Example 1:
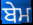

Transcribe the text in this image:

ਬੇਮ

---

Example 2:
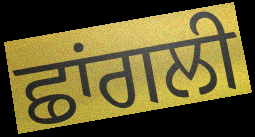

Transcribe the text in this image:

ਛਾਂਗਲੀ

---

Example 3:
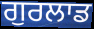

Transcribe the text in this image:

ਗੁਰਲਾਡ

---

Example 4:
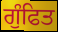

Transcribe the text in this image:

ਗੁੰਫਿਤ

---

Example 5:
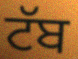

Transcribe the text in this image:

ਟੱਬ